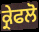
ਕ੍ਰੇਫਲੋ